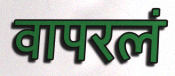
वापरलं